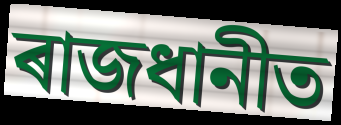
ৰাজধানীত